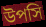
উপসি